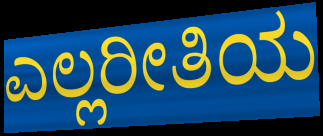
ಎಲ್ಲರೀತಿಯ